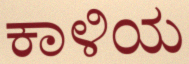
ಕಾಳಿಯ